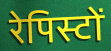
रेपिस्टों